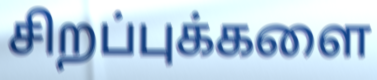
சிறப்புக்களை